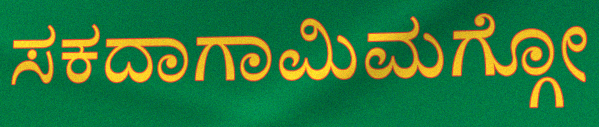
ಸಕದಾಗಾಮಿಮಗ್ಗೋ